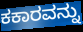
ಕಕಾರವನ್ನು